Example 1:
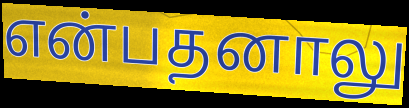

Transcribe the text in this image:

என்பதனாலு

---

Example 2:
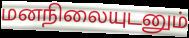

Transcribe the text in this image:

மனநிலையுடனும்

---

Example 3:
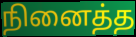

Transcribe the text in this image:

நினைத்த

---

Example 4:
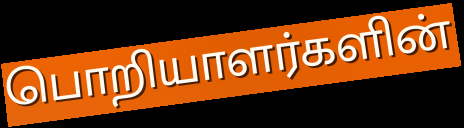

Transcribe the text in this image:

பொறியாளர்களின்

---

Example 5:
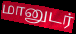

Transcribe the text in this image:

மானுடர்